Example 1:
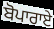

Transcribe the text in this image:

ਬੋਪਾਰਾਏ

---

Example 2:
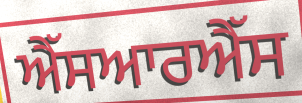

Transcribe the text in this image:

ਐੱਸਆਰਐੱਸ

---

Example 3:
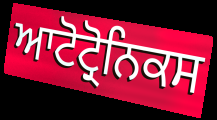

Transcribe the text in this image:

ਆਟੋਟ੍ਰੋਨਿਕਸ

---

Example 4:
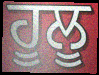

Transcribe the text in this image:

ਹੂਲੂ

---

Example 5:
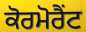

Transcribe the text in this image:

ਕੋਰਮੋਰੈਂਟ